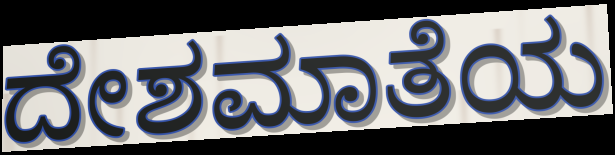
ದೇಶಮಾತೆಯ